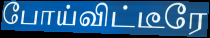
போய்விட்டீரே